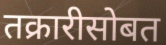
तक्रारीसोबत